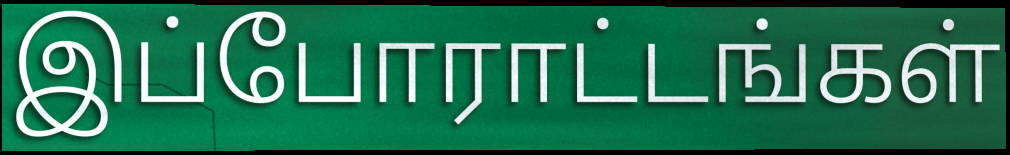
இப்போராட்டங்கள்